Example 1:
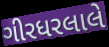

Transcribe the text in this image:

ગીરધરલાલે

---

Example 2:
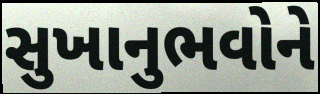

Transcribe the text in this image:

સુખાનુભવોને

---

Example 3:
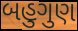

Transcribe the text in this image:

બહુગુણ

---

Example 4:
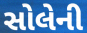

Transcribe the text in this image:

સોલેની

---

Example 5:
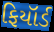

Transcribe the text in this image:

ફિયૉર્ડ